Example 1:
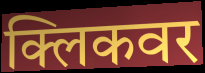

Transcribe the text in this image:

क्लिकवर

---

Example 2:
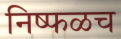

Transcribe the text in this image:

निष्फळच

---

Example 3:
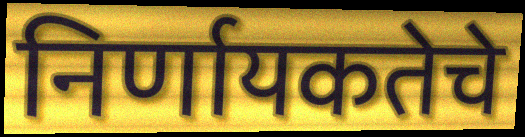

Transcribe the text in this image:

निर्णायकतेचे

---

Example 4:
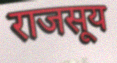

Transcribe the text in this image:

राजसूय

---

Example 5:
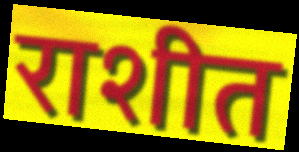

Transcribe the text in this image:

राशीत